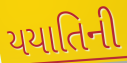
યયાતિની